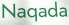
Naqada